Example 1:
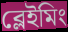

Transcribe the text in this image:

ব্লেইমিং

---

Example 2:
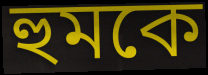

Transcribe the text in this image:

হুমকে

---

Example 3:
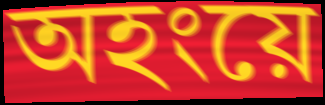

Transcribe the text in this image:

অহংয়ে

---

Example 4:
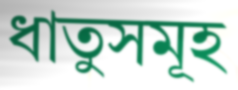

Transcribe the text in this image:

ধাতুসমূহ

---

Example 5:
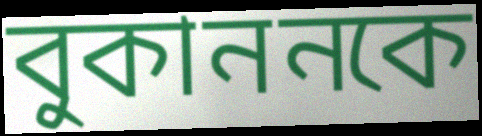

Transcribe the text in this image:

বুকাননকে